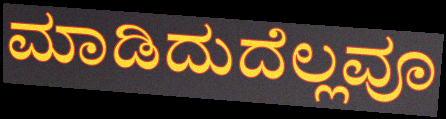
ಮಾಡಿದುದೆಲ್ಲವೂ